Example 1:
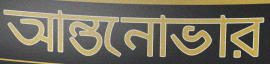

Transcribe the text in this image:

আন্তনোভার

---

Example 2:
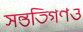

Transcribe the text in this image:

সন্ততিগণও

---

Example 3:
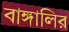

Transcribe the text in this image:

বাঙ্গালির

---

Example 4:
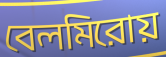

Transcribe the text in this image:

বেলমিরোয়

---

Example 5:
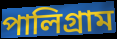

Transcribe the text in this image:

পালিগ্রাম